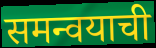
समन्वयाची